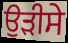
ਉੜੀਸੇ